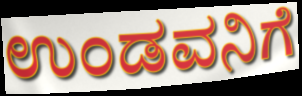
ಉಂಡವನಿಗೆ